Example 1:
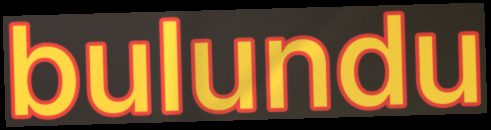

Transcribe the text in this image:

bulundu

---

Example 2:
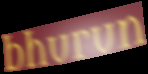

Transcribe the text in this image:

bhurun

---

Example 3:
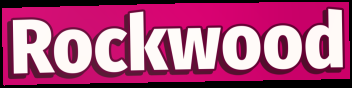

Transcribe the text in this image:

Rockwood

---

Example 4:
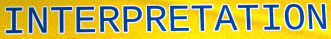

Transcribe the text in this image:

INTERPRETATION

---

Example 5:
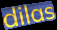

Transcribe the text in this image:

dilas